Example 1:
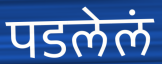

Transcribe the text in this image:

पडलेलं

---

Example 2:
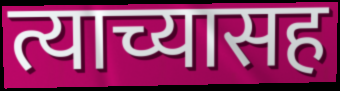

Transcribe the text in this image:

त्याच्यासह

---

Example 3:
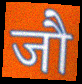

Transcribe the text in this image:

जौ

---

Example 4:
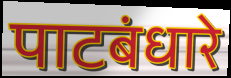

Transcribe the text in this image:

पाटबंधारे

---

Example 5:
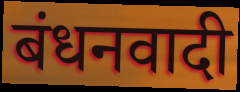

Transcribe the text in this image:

बंधनवादी